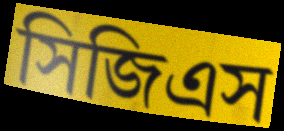
সিজিএস